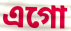
এগো